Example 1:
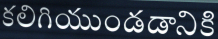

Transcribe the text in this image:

కలిగియుండడానికి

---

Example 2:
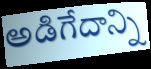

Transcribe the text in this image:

అడిగేదాన్ని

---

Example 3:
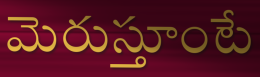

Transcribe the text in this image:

మెరుస్తూంటే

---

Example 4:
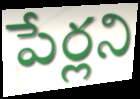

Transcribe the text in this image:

పేర్లని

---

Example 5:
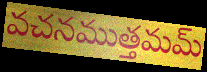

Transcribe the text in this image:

వచనముత్తమమ్